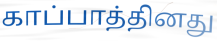
காப்பாத்தினது